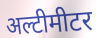
अल्टीमीटर